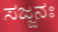
ಸಜ್ಜನಃ